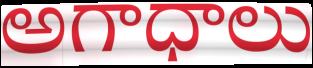
అగాధాలు